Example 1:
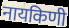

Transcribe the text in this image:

नायकिणी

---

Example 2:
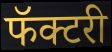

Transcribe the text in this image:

फॅक्टरी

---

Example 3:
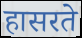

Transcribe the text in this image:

हासरते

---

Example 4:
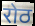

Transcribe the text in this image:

रोठ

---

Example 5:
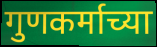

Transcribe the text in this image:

गुणकर्माच्या